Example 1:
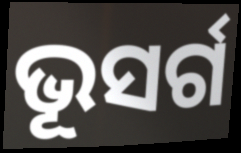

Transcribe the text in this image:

ଭୂସର୍ଗ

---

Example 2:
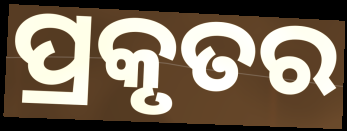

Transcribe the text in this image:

ପ୍ରକୃତର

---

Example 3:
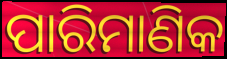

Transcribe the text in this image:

ପାରିମାଣିକ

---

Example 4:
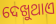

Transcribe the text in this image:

ଦେଖୁଥାଏ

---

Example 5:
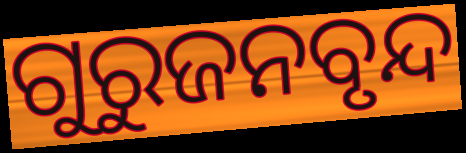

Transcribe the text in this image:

ଗୁରୁଜନବୃନ୍ଦ